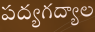
పద్యగద్యాల